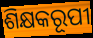
ଶିକ୍ଷକରୂପୀ